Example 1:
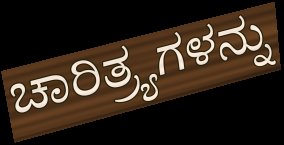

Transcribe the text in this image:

ಚಾರಿತ್ರ್ಯಗಳನ್ನು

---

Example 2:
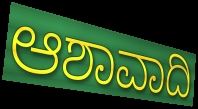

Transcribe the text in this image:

ಆಶಾವಾದಿ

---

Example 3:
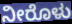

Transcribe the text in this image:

ನೀರೊಳು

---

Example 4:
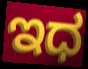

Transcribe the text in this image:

ಇಧ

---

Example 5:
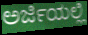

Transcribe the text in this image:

ಅರ್ಜಿಯಲ್ಲಿ